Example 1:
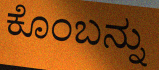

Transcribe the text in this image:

ಕೊಂಬನ್ನು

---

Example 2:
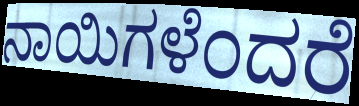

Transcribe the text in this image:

ನಾಯಿಗಳೆಂದರೆ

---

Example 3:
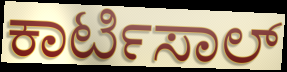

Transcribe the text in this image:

ಕಾರ್ಟಿಸಾಲ್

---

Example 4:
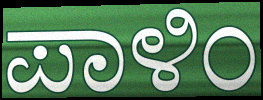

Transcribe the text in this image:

ಪಾಳಿಂ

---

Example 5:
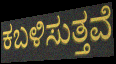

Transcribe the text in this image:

ಕಬಳಿಸುತ್ತವೆ